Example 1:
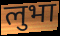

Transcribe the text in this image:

लुभा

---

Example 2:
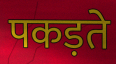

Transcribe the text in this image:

पकड़ते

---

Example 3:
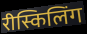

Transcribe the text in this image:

रीस्किलिंग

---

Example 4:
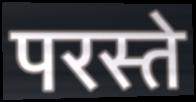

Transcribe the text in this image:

परस्ते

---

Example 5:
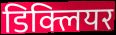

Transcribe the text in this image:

डिक्लियर